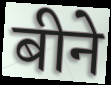
बीने